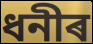
ধনীৰ